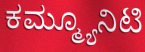
ಕಮ್ಮ್ಯೂನಿಟಿ